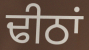
ਢੀਠਾਂ